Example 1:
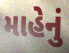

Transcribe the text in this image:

માહેનું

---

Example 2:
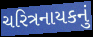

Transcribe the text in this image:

ચરિત્રનાયકનું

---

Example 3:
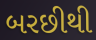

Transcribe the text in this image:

બરછીથી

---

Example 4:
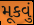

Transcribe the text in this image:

મૂકવું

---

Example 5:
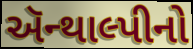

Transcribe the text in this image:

ઍન્થાલ્પીનો